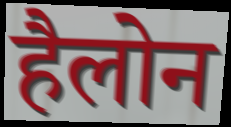
हैलोन